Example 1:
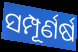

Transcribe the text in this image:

ସମ୍ପୂର୍ଣର୍ଷ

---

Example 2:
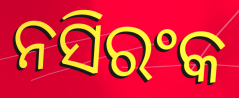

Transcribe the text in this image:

ନସିରଂକ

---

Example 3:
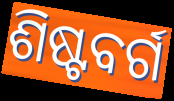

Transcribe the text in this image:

ଶିଷ୍ଟବର୍ଗ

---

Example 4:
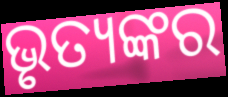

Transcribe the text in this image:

ଭୃତ୍ୟଙ୍କର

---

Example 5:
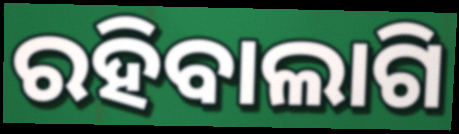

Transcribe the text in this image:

ରହିବାଲାଗି